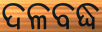
ଦଳବଦ୍ଧ